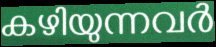
കഴിയുന്നവർ